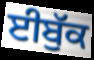
ਈਬੁੱਕ